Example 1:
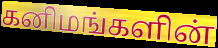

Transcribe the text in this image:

கனிமங்களின்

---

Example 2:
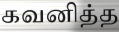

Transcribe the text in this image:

கவனித்த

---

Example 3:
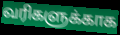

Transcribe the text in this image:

வரிகளுக்காக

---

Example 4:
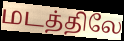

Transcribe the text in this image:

மடத்திலே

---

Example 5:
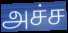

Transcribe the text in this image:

அச்ச